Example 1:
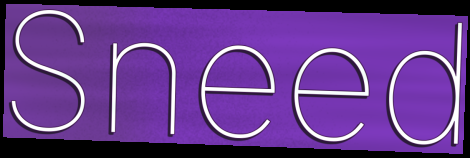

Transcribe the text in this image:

Sneed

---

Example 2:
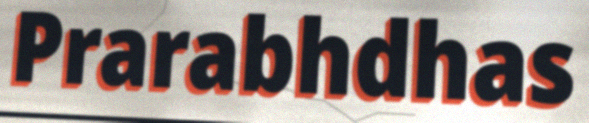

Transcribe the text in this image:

Prarabhdhas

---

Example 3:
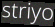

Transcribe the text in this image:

striyo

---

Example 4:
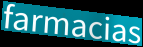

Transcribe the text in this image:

farmacias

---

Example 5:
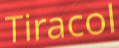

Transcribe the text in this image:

Tiracol